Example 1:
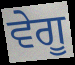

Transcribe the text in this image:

ਵੇਗੂ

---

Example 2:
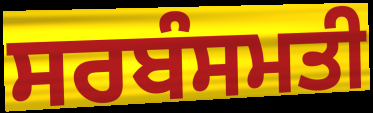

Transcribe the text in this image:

ਸਰਬੰਸਮਤੀ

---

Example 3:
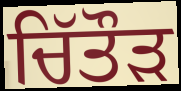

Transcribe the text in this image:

ਚਿੱਤੌੜ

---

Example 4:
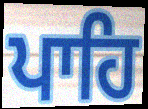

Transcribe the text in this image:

ਪਾਹਿ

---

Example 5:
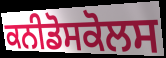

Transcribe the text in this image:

ਕਨੀਡੋਸਕੋਲਸ